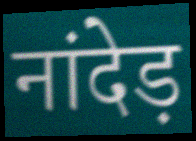
नांदेड़